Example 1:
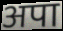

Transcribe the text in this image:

अपा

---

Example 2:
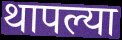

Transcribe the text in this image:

थापल्या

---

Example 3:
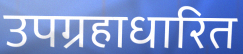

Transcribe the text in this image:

उपग्रहाधारित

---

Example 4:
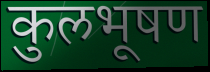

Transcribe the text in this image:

कुलभूषण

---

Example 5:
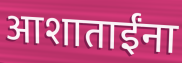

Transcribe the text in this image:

आशाताईंना